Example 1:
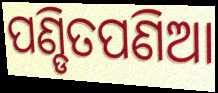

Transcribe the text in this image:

ପଣ୍ଡିତପଣିଆ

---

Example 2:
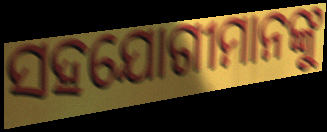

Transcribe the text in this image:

ସହଯୋଗୀମାନଙ୍କୁ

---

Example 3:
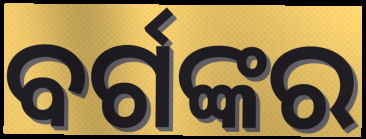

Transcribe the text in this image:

ବର୍ଗଙ୍କର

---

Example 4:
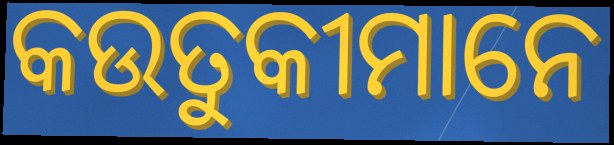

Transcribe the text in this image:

କଉତୁକୀମାନେ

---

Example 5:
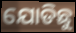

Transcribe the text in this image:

ଯୋଡିଛୁ